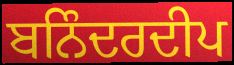
ਬਨਿੰਦਰਦੀਪ